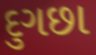
દુગછા